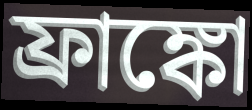
ফ্রাঙ্কো